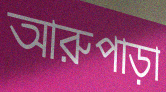
আরুপাড়া